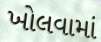
ખોલવામાં